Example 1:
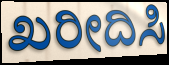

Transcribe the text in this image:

ಖರೀದಿಸಿ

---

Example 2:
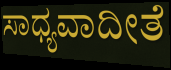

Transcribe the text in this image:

ಸಾಧ್ಯವಾದೀತೆ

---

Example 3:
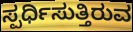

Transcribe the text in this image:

ಸ್ಪರ್ಧಿಸುತ್ತಿರುವ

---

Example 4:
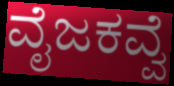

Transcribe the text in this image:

ವೈಜಕವ್ವೆ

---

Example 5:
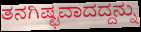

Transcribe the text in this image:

ತನಗಿಷ್ಟವಾದದ್ದನ್ನು